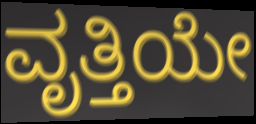
ವೃತ್ತಿಯೇ